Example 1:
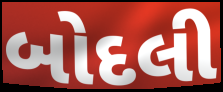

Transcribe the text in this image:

બોદલી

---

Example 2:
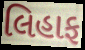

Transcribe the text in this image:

લિહાફ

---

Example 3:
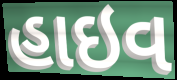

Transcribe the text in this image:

હાઇવ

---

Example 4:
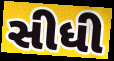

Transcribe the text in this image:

સીધી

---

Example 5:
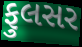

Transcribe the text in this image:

ફુલસર